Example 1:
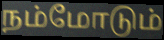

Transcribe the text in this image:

நம்மோடும்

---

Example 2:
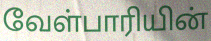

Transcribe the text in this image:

வேள்பாரியின்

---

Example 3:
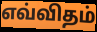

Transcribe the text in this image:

எவ்விதம்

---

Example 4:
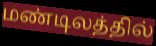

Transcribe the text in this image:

மண்டிலத்தில்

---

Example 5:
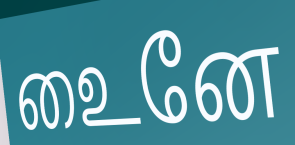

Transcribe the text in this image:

உைனே